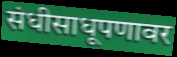
संधीसाधूपणावर